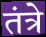
तंत्रे